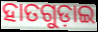
ହାତଗୁଡ଼ାଇ